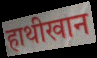
हाथीखान